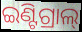
ଇଣ୍ଟିଗ୍ରାଲ୍